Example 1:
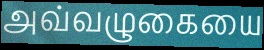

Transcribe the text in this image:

அவ்வழுகையை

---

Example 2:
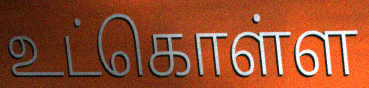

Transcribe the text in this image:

உட்கொள்ள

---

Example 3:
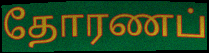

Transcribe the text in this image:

தோரணப்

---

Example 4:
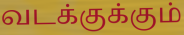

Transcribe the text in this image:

வடக்குக்கும்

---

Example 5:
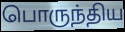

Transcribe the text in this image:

பொருந்திய